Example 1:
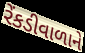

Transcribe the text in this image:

રેંકડીવાળાને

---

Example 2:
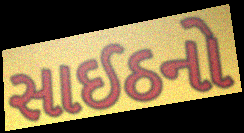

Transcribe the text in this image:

સાઈઠનો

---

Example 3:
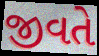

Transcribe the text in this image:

જીવતે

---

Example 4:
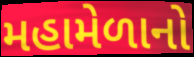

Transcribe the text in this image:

મહામેળાનો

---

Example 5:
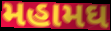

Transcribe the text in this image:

મહામઘ